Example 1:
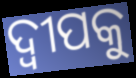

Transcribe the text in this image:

ଦ୍ୱୀପକୁ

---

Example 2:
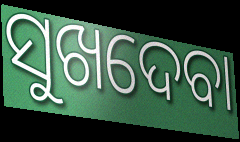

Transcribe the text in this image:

ସୁଖଦେବା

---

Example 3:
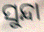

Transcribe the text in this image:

ସୁନ୍ଦା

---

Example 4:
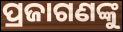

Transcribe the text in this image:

ପ୍ରଜାଗଣଙ୍କୁ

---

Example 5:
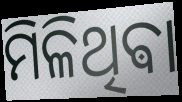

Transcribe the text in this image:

ମିଳିଥିଵା